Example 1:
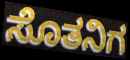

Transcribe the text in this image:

ಸೊತನಿಗ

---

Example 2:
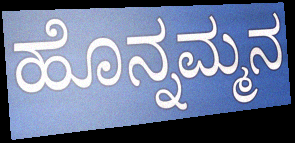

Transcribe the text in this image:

ಹೊನ್ನಮ್ಮನ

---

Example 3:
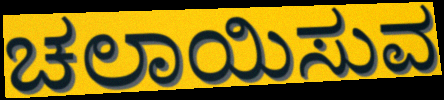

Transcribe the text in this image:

ಚಲಾಯಿಸುವ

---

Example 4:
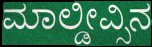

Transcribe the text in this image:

ಮಾಲ್ಡೀವ್ಸಿನ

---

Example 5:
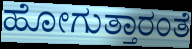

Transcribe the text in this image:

ಹೋಗುತ್ತಾರಂತೆ